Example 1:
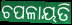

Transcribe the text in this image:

ଚପଳାୟତି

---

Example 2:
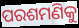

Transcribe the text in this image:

ପରଶମଣିକୁ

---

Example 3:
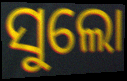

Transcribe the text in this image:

ସୁଲୋ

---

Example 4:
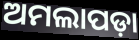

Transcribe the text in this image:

ଅମଲାପଡ଼ା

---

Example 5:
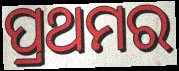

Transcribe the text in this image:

ପ୍ରଥମର